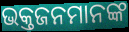
ଭକ୍ତଜନମାନଙ୍କ